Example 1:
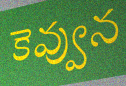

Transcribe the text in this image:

కెవ్వున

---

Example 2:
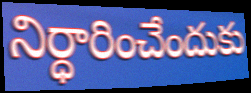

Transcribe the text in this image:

నిర్ధారించేందుకు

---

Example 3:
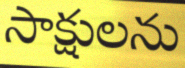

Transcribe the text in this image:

సాక్షులను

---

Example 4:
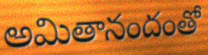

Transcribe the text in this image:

అమితానందంతో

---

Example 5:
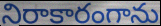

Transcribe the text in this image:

నిరాకారంగాను